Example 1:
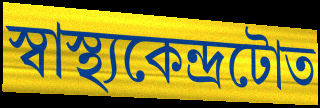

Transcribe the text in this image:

স্বাস্থ্যকেন্দ্ৰটোত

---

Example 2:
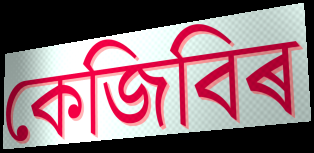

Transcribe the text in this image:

কেজিবিৰ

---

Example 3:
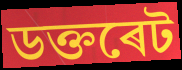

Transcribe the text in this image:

ডক্তৰেট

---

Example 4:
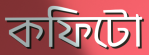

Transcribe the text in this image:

কফিটো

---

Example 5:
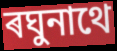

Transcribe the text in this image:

ৰঘুনাথে